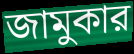
জামুকার